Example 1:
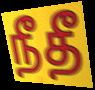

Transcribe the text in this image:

நீதீ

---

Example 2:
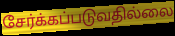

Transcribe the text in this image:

சேர்க்கப்படுவதில்லை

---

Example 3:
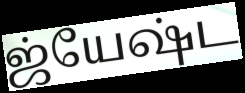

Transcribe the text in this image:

ஜ்யேஷ்ட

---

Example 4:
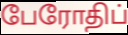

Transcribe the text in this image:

பேரோதிப்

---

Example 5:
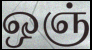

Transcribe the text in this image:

ஒஞ்